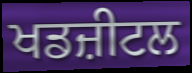
ਖਡਜ਼ੀਟਲ